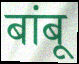
बांबू